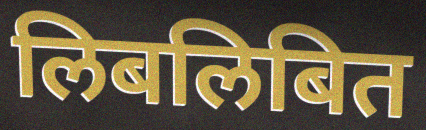
लिबलिबित